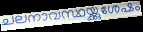
ചലനാവസ്ഥയ്ക്കുശേഷം